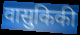
वासुकिकी